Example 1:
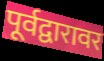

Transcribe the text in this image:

पूर्वद्वारावर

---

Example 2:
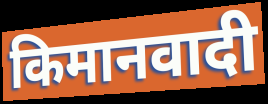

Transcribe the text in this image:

किमानवादी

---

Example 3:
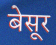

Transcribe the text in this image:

बेसूर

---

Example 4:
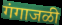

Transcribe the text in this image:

गंगाजळी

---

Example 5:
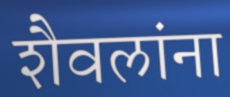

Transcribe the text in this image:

शैवलांना